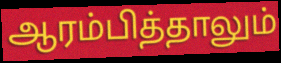
ஆரம்பித்தாலும்